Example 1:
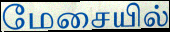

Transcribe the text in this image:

மேசையில்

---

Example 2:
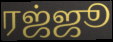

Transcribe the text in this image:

ரஜ்ஜூ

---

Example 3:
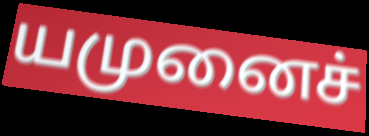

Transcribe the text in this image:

யமுனைச்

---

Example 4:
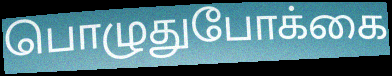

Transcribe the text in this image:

பொழுதுபோக்கை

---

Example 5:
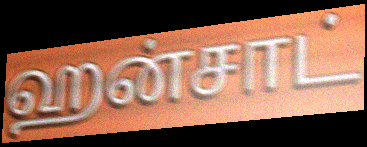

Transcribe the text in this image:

ஹன்சாட்